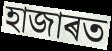
হাজাৰত